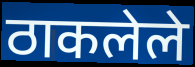
ठाकलेले